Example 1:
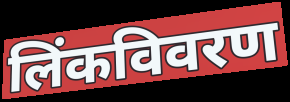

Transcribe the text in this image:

लिंकविवरण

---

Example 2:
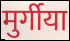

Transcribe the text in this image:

मुर्गीया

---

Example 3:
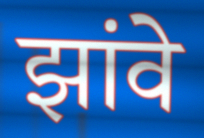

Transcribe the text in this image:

झांवे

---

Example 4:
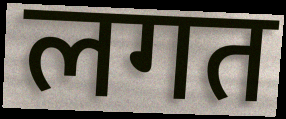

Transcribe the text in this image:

लगत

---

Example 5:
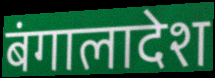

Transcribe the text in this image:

बंगालादेश